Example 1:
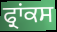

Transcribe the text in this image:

ਫ੍ਰਾਂਕਸ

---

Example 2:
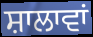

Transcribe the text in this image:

ਸ਼ਾਲਾਵਾਂ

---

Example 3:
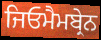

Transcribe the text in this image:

ਜਿਓਮੈਮਬ੍ਰੇਨ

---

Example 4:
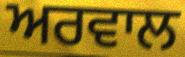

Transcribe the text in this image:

ਅਰਵਾਲ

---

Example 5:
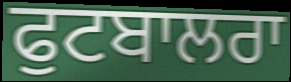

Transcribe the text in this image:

ਫੁਟਬਾਲਰਾ